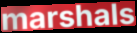
marshals